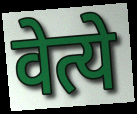
वेत्ये